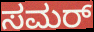
ಸಮರ್